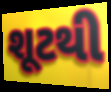
શૂટથી